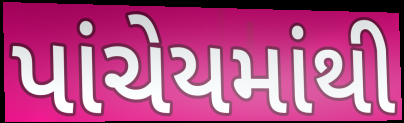
પાંચેયમાંથી